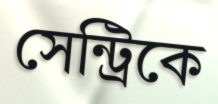
সেন্ট্রিকে